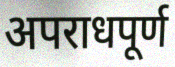
अपराधपूर्ण